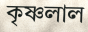
কৃষ্ণলাল